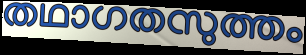
തഥാഗതസുത്തം